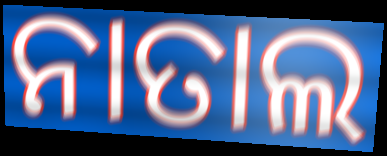
ନାତାଲ